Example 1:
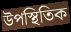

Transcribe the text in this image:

উপস্থিতিক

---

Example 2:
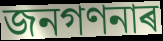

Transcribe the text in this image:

জনগণনাৰ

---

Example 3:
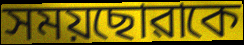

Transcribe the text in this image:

সময়ছোৱাকে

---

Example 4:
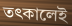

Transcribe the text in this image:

তৎকালেই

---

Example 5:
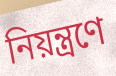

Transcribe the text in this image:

নিয়ন্ত্ৰণে